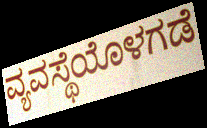
ವ್ಯವಸ್ಥೆಯೊಳಗಡೆ